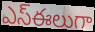
ఎస్ఈలుగా